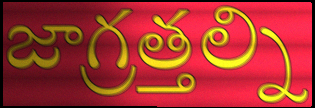
జాగ్రత్తల్ని